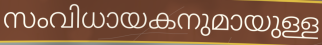
സംവിധായകനുമായുള്ള